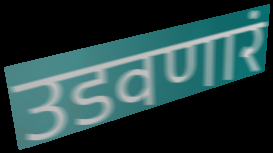
उडवणारं